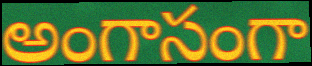
అంగాసంగా